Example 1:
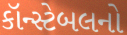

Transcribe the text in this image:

કૉન્સ્ટેબલનો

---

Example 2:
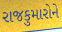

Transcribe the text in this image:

રાજકુમારોને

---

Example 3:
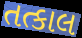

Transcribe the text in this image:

તત્કાલ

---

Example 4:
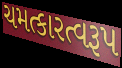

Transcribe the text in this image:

ચમત્કારત્વરૂપ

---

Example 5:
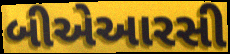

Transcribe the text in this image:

બીએઆરસી